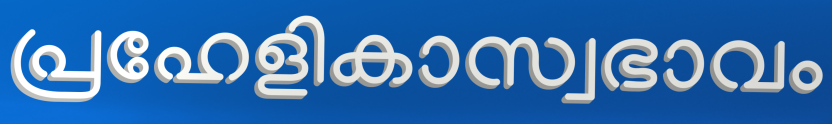
പ്രഹേളികാസ്വഭാവം